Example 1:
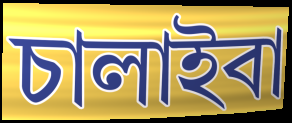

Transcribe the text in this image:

চালাইবা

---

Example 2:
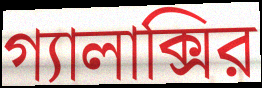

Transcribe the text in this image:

গ্যালাক্সির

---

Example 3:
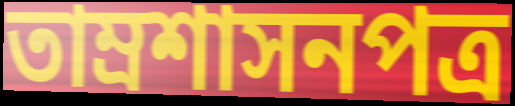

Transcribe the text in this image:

তাম্রশাসনপত্র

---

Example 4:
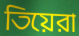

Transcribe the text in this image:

তিয়েরা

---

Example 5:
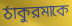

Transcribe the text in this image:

ঠাকুরমাকে